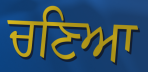
ਚਣਿਆ